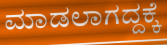
ಮಾಡಲಾಗದ್ದಕ್ಕೆ